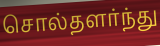
சொல்தளர்ந்து